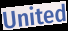
United